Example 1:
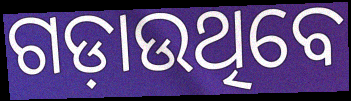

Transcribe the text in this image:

ଗଡ଼ାଉଥିବେ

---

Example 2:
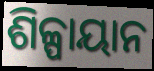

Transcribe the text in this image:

ଶିଳ୍ପାୟାନ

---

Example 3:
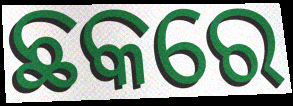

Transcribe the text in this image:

ଛକରେ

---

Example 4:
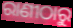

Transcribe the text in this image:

ରାଣୀଠାରୁ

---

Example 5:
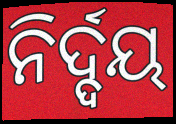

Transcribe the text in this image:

ନିର୍ଦ୍ଦୟ